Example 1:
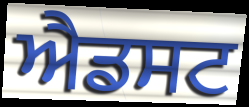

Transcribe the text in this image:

ਐਡਸਟ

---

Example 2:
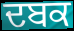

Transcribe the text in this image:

ਦਬਕ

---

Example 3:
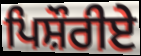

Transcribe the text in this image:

ਪਿਸ਼ੌਰੀਏ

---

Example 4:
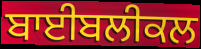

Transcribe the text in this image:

ਬਾਈਬਲੀਕਲ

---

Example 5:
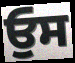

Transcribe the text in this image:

ਓੁਸ